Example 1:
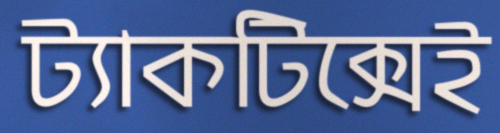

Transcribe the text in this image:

ট্যাকটিক্সেই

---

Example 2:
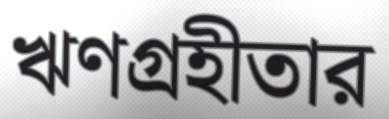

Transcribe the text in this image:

ঋণগ্রহীতার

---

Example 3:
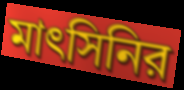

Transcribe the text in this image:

মাৎসিনির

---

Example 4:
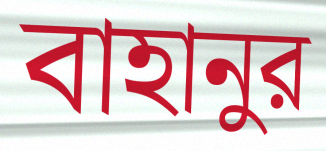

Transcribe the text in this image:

বাহানুর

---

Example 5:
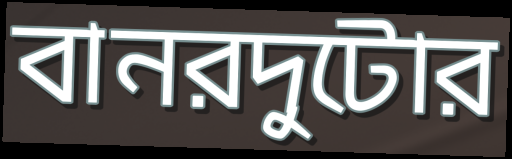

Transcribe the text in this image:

বানরদুটোর